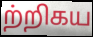
ற்றிகய